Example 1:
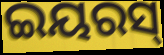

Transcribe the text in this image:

ଇୟରସ୍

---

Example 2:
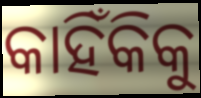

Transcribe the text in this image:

କାହିଁକିକୁ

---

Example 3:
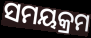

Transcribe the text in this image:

ସମୟକ୍ରମ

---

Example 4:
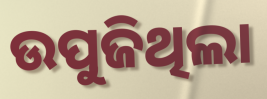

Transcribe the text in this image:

ଉପୁଜିଥିଲା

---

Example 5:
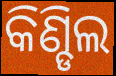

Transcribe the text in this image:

କିଣ୍ଡିଲ